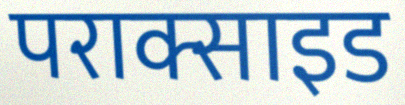
पराक्साइड